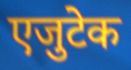
एजुटेक